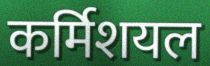
कर्मिशयल